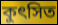
কুৎসিত